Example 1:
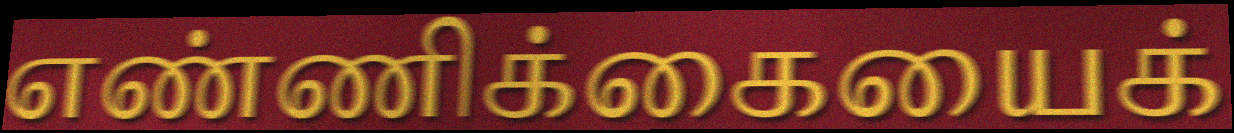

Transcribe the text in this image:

எண்ணிக்கையைக்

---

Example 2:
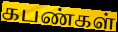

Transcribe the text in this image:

கபண்கள்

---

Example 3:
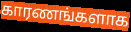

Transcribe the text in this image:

காரணங்களாக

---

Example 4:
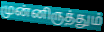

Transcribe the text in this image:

முன்னிருத்தும்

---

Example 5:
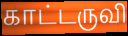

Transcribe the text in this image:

காட்டருவி